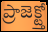
ప్రాజెక్ట్తో